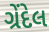
ગ્રેંદેલ